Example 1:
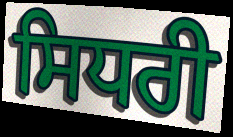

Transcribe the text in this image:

ਸਿਧਰੀ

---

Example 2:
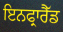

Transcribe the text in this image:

ਇਨਫ੍ਰਾਰੈੱਡ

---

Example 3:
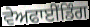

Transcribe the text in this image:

ਵੇਅਫਾਈਂਡਿੰਗ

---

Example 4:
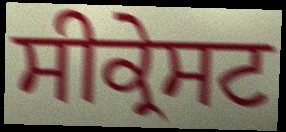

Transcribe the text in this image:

ਸੀਕ੍ਰੇਸਟ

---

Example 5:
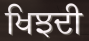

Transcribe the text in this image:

ਖਿਝਦੀ